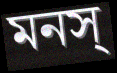
মনস্